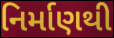
નિર્માણથી